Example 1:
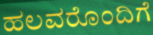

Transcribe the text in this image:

ಹಲವರೊಂದಿಗೆ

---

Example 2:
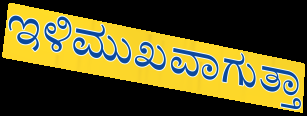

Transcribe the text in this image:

ಇಳಿಮುಖವಾಗುತ್ತಾ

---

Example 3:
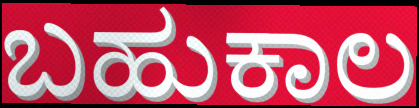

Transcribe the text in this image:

ಬಹುಕಾಲ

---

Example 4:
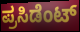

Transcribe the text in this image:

ಪ್ರಸಿಡೆಂಟ್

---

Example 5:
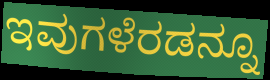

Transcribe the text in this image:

ಇವುಗಳೆರಡನ್ನೂ